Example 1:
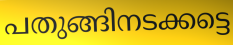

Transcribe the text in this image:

പതുങ്ങിനടക്കട്ടെ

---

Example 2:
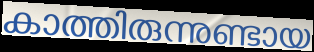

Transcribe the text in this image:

കാത്തിരുന്നുണ്ടായ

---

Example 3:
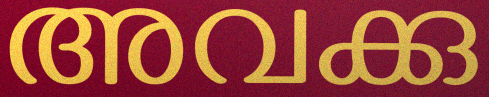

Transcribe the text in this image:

അവക്കു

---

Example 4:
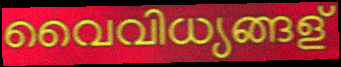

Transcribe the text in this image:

വൈവിധ്യങ്ങള്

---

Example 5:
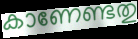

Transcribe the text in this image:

കാണേണ്ടതു